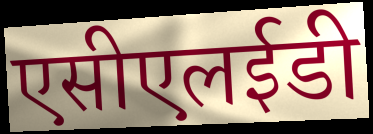
एसीएलईडी